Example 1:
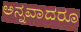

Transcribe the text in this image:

ಅನ್ನವಾದರೂ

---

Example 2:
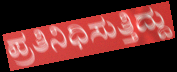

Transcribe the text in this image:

ಪ್ರತಿನಿಧಿಸುತ್ತಿದ್ದು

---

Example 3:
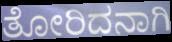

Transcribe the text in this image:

ತೋರಿದನಾಗಿ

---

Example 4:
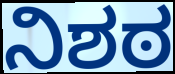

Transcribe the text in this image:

ನಿಶಠ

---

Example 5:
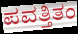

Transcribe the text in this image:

ಪವತ್ತಿತಂ